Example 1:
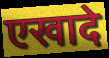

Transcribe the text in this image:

एखादे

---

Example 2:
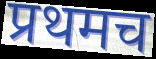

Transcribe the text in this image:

प्रथमच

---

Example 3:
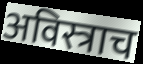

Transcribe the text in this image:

अविस्त्राच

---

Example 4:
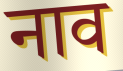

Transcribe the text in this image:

नाव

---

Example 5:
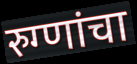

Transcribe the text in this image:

रुग्णांचा